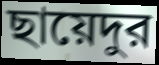
ছায়েদুর